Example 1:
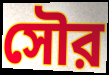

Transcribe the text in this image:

সৌর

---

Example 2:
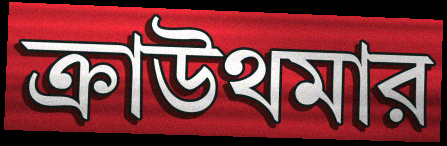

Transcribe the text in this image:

ক্রাউথমার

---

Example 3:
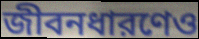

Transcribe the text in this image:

জীবনধারণেও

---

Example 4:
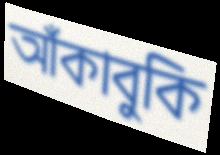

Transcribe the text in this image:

আঁকাবুকি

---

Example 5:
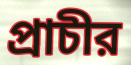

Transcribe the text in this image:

প্রাচীর